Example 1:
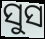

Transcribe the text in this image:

ସୁସ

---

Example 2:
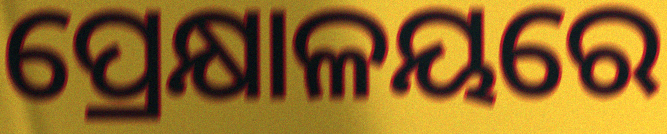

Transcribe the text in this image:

ପ୍ରେକ୍ଷାଳୟରେ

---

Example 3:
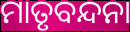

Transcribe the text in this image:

ମାତୃବନ୍ଦନା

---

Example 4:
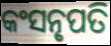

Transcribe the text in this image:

କଂସନୃପତି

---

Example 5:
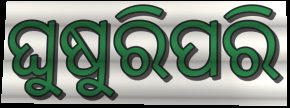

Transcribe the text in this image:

ଘୁଷୁରିପରି